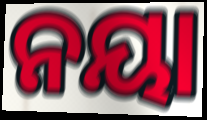
ନୟା